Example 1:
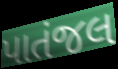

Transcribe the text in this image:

પાતંજલ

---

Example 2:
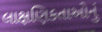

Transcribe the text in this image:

લાક્ષણિકતાઓનું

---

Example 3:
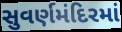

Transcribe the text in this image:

સુવર્ણમંદિરમાં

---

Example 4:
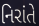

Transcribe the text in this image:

નિરાંતે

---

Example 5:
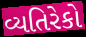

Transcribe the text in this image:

વ્યતિરેકો